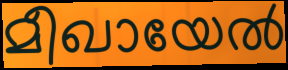
മീഖായേൽ